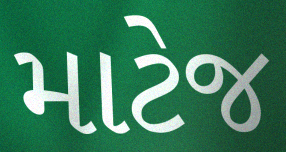
માટેજ